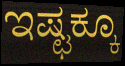
ಇಷ್ಟಕ್ಕೂ